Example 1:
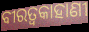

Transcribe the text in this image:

ବୀରତ୍ୱକାହାଣୀ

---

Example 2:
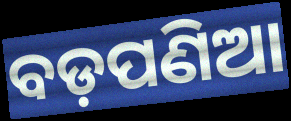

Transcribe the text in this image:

ବଡ଼ପଣିଆ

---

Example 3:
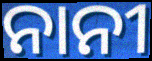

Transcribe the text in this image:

ନାନୀ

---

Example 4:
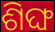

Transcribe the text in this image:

ଶିଙ୍ଘ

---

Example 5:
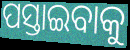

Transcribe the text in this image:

ପସ୍ତାଇବାକୁ